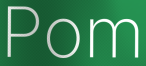
Pom